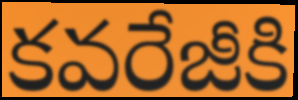
కవరేజీకి